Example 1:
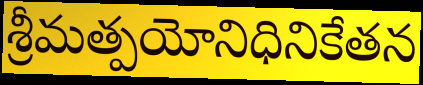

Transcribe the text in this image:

శ్రీమత్పయోనిధినికేతన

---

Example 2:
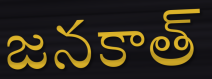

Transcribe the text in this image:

జనకాత్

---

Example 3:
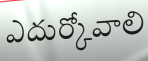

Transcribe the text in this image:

ఎదుర్కోవాలి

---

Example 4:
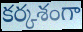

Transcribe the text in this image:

కర్కశంగా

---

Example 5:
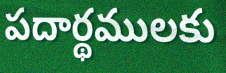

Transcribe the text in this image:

పదార్థములకు